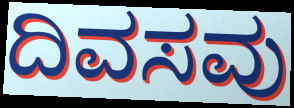
ದಿವಸವು